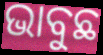
ଭାବୁଛ